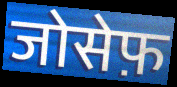
जोसेफ़